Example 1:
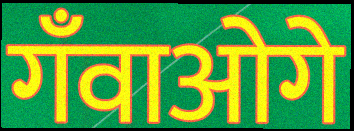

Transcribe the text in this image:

गँवाओगे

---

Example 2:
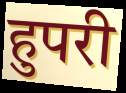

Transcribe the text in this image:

हुपरी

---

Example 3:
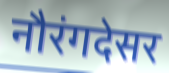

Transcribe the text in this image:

नौरंगदेसर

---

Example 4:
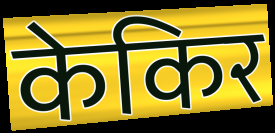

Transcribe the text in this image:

केकिर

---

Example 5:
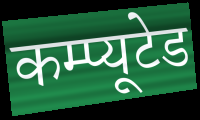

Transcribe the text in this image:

कम्प्यूटेड